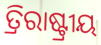
ତ୍ରିରାଷ୍ଟ୍ରୀୟ